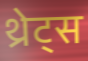
थ्रेट्स